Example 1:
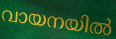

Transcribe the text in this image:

വായനയിൽ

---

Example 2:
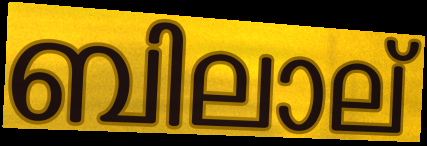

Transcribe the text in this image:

ബിലാല്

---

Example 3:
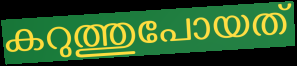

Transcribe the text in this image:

കറുത്തുപോയത്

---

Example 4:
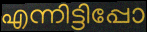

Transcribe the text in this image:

എന്നിട്ടിപ്പോ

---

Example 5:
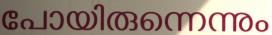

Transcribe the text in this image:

പോയിരുന്നെന്നും